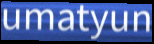
umatyun